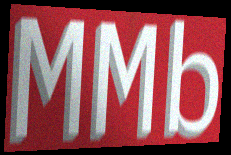
MMb